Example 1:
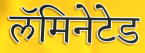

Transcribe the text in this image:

लॅमिनेटेड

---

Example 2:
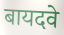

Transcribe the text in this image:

बायदवे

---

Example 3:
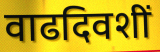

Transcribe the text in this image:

वाढदिवशीं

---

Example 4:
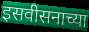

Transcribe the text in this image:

इसवीसनाच्या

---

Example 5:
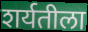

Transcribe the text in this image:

शर्यतीला